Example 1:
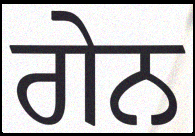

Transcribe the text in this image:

ਗੇਨ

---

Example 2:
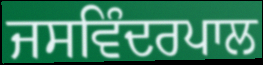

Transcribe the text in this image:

ਜਸਵਿੰਦਰਪਾਲ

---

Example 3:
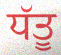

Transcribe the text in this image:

ਧੱਤੂ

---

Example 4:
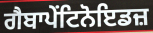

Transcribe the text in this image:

ਗੈਬਾਪੇਂਟਿਨੋਇਡਜ਼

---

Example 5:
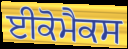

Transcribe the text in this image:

ਈਕੋਮੈਕਸ